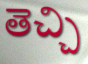
తెచ్చి